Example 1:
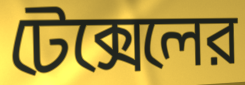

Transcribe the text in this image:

টেক্সেলের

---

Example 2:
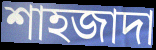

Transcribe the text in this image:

শাহজাদা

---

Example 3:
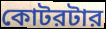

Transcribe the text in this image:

কোটরটার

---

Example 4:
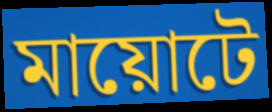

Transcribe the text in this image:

মায়োটে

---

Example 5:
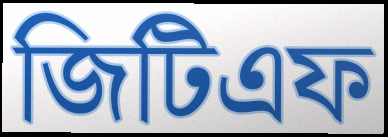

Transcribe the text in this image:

জিটিএফ